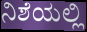
ನಿಶೆಯಲ್ಲಿ